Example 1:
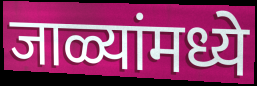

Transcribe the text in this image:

जाळ्यांमध्ये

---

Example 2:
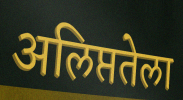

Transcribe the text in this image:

अलिप्ततेला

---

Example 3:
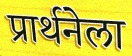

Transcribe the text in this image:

प्रार्थनेला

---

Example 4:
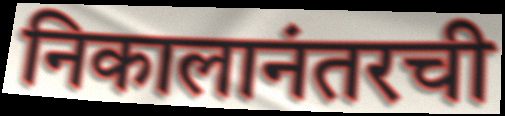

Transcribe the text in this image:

निकालानंतरची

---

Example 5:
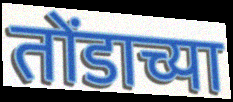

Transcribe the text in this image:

तोंडाच्या